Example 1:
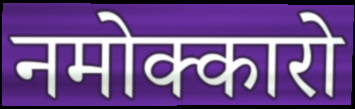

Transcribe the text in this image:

नमोक्कारो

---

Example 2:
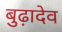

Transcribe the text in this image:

बुढ़ादेव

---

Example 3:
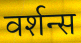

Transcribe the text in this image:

वर्शन्स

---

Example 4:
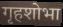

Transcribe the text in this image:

गृहशोभा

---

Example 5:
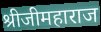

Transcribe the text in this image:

श्रीजीमहाराज